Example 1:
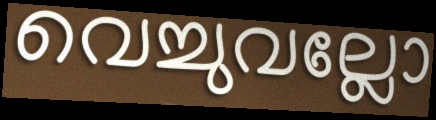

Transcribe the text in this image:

വെച്ചുവല്ലോ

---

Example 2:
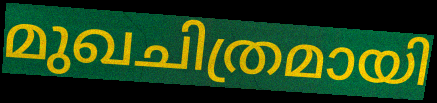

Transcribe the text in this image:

മുഖചിത്രമായി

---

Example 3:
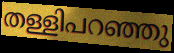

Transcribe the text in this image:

തള്ളിപറഞ്ഞു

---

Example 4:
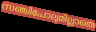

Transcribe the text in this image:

സഞ്ചിപോലുമില്ലാതെ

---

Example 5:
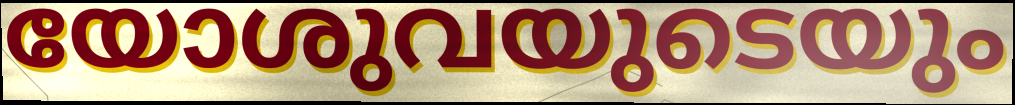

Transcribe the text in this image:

യോശുവയുടെയും